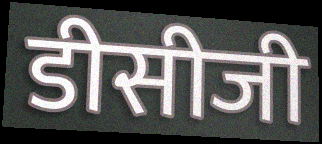
डीसीजी